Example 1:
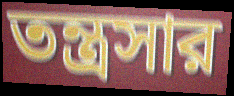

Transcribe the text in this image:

তন্ত্রসার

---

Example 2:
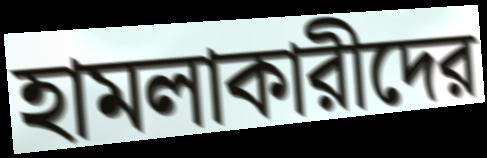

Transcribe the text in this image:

হামলাকারীদের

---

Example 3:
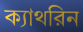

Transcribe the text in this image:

ক্যাথরিন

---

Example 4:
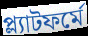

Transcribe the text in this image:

প্ল্যাটফর্মে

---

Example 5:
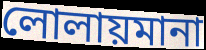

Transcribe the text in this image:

লোলায়মানা